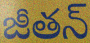
జీతన్